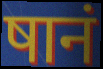
षानं